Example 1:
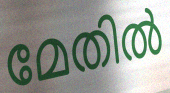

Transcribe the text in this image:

മേതിൽ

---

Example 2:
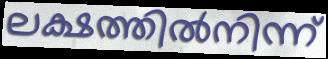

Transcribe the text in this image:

ലക്ഷത്തിൽനിന്ന്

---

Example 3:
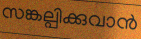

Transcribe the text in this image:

സങ്കല്പിക്കുവാൻ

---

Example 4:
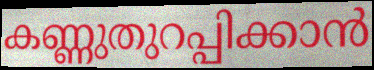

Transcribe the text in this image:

കണ്ണുതുറപ്പിക്കാൻ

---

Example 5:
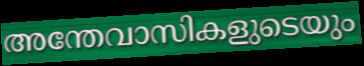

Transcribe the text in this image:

അന്തേവാസികളുടെയും